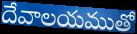
దేవాలయముతో